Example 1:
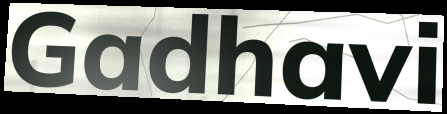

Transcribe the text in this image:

Gadhavi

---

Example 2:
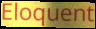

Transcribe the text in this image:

Eloquent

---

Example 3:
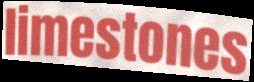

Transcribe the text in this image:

limestones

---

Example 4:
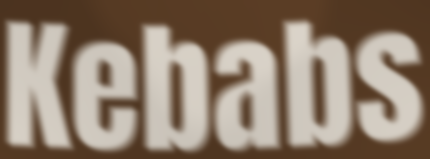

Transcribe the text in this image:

Kebabs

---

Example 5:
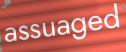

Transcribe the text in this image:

assuaged